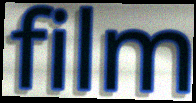
film